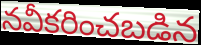
నవీకరించబడిన